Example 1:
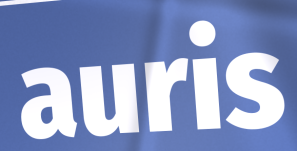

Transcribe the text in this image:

auris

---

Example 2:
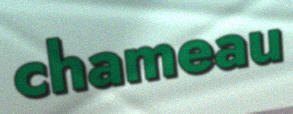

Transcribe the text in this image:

chameau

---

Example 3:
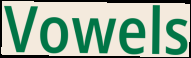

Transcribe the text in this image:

Vowels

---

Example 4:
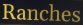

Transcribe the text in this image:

Ranches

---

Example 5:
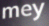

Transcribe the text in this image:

mey